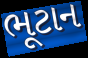
ભૂટાન